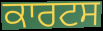
ਕਾਰਟਸ